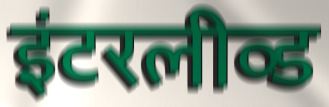
इंटरलीव्ड